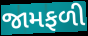
જામફળી